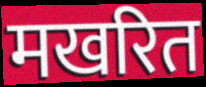
मखरित